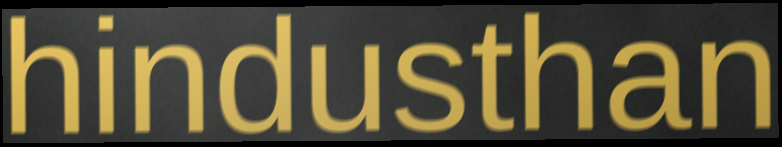
hindusthan